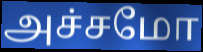
அச்சமோ